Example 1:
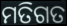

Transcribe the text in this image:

ମତିଗତ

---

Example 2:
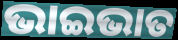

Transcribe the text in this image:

ଭାଇଭାତ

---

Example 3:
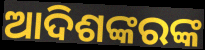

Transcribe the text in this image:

ଆଦିଶଙ୍କରଙ୍କ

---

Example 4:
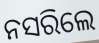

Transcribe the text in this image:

ନସରିଲେ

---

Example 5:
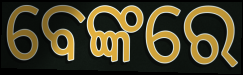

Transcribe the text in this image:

ବେଙ୍କରେ